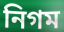
নিগম